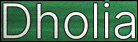
Dholia